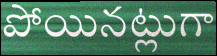
పోయినట్లుగా